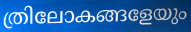
ത്രിലോകങ്ങളേയും